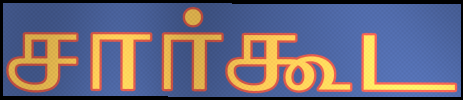
சார்கூட